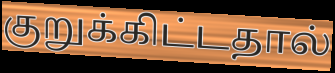
குறுக்கிட்டதால்